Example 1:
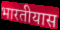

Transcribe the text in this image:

भारतीयास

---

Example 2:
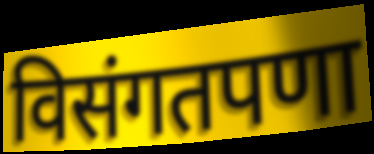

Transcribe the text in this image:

विसंगतपणा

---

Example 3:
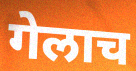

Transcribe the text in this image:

गेलाच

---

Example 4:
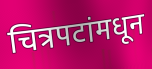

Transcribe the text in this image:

चित्रपटांमधून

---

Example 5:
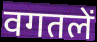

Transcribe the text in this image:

वगतलें